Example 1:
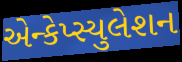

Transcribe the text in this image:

એન્કેપ્સ્યુલેશન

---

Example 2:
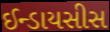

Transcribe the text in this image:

ઈન્ડાયસીસ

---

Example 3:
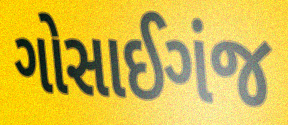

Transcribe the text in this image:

ગોસાઈગંજ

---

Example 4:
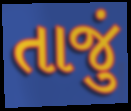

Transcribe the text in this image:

તાજું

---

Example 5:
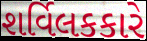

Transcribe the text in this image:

શર્વિલકકારે